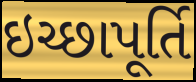
ઇચ્છાપૂર્તિ